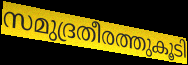
സമുദ്രതീരത്തുകൂടി